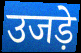
उजड़े